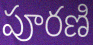
పూరణి